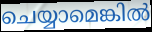
ചെയ്യാമെങ്കിൽ